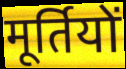
मूर्तियों